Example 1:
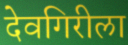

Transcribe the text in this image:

देवगिरीला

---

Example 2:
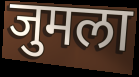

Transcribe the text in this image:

जुमला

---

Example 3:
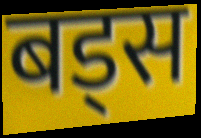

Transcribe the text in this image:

बड्स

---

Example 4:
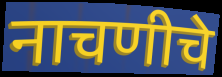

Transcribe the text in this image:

नाचणीचे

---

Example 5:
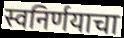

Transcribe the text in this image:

स्वनिर्णयाचा